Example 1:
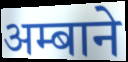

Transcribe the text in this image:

अम्बाने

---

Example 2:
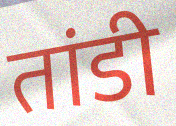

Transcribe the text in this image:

तांडी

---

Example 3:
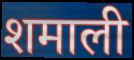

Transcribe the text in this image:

शमाली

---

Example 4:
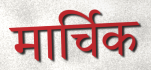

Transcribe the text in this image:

मार्चिक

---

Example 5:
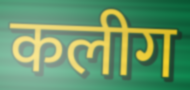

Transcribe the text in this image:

कलीग